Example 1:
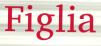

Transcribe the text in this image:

Figlia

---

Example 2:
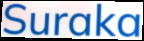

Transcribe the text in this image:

Suraka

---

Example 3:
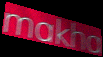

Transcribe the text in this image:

makha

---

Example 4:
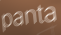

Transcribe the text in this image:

panta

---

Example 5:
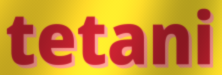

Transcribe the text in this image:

tetani